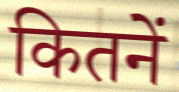
कितनें